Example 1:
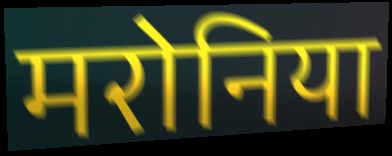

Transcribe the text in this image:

मरोनिया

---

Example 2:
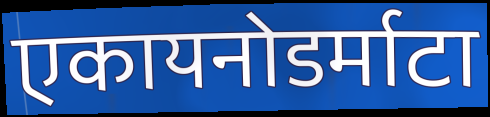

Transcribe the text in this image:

एकायनोडर्माटा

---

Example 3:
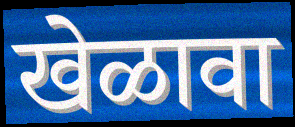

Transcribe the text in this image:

खेळावा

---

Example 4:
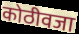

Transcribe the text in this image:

कोठीवजा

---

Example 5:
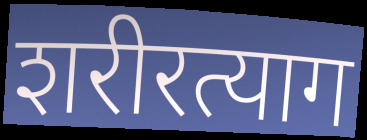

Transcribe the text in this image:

शरीरत्याग